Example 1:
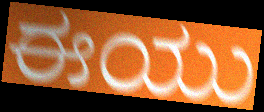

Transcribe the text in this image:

ಈಯು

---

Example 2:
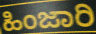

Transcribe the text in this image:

ಹಿಂಜಾರಿ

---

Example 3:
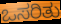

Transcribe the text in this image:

ಒಸರಿತು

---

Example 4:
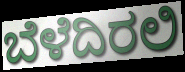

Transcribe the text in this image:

ಬೆಳೆದಿರಲಿ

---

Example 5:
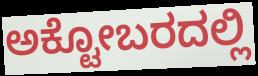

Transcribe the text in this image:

ಅಕ್ಟೋಬರದಲ್ಲಿ